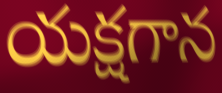
యక్షగాన